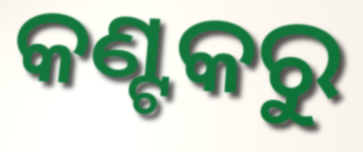
କଣ୍ଟକରୁ